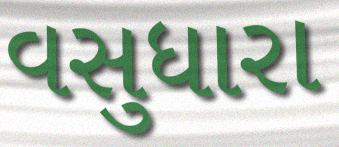
વસુધારા